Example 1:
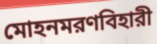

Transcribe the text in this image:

মোহনমরণবিহারী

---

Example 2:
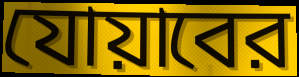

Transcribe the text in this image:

যোয়াবের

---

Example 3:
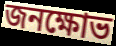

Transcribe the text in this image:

জনক্ষোভ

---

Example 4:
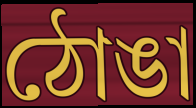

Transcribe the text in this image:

ঠোঙা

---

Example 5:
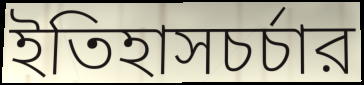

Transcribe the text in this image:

ইতিহাসচর্চার